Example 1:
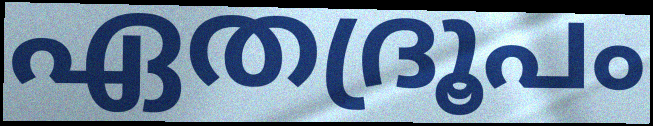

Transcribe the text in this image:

ഏതദ്രൂപം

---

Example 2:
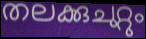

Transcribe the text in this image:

തലക്കുചുറ്റും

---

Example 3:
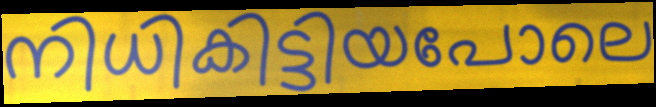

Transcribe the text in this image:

നിധികിട്ടിയപോലെ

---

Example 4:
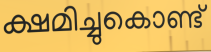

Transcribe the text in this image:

ക്ഷമിച്ചുകൊണ്ട്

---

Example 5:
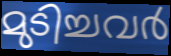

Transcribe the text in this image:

മുടിച്ചവർ